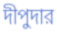
দীপুদার